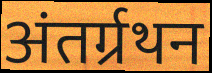
अंतर्ग्रथन